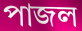
পাজল